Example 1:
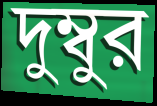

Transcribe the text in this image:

দুম্বুর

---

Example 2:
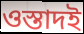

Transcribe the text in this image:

ওস্তাদই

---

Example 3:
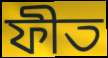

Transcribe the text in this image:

ফীত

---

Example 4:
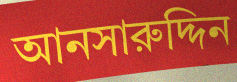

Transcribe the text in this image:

আনসারুদ্দিন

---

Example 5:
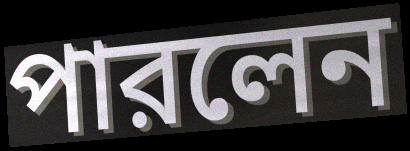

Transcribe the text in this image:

পারলেন